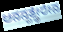
ಆನನ್ದತ್ಥೇರೇನ